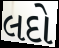
લદો